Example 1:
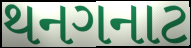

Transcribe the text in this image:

થનગનાટ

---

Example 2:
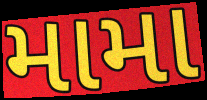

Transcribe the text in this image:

મામા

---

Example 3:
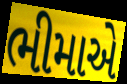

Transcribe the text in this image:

ભીમાએ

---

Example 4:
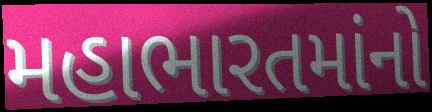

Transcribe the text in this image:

મહાભારતમાંનો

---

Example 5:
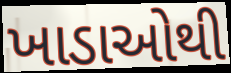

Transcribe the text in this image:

ખાડાઓથી